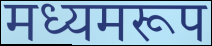
मध्यमरूप